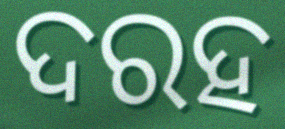
ଦରହ